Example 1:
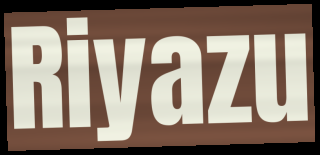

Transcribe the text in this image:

Riyazu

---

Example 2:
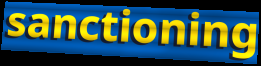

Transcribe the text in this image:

sanctioning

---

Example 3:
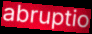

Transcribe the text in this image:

abruptio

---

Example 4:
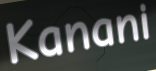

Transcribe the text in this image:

Kanani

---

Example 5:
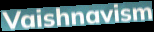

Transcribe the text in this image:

Vaishnavism